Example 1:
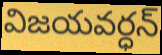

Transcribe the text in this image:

విజయవర్ధన్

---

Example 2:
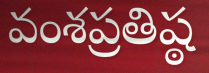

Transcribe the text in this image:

వంశప్రతిష్ఠ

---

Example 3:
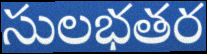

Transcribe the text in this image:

సులభతర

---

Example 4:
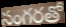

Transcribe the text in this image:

సంగరతో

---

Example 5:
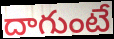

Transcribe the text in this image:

దాగుంటే